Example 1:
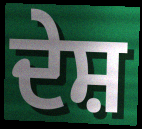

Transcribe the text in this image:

ਦੇਸ਼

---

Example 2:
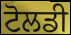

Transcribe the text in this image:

ਟੋਲਡੀ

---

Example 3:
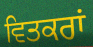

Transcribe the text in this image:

ਵਿਤਕਰਾਂ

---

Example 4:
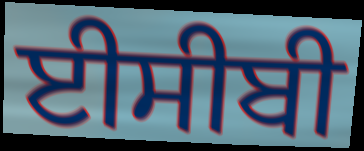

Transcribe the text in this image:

ਈਸੀਬੀ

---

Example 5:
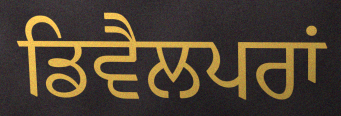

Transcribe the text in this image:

ਡਿਵੈਲਪਰਾਂ